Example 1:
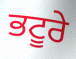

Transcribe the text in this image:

ਭਟੂਰੇ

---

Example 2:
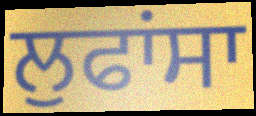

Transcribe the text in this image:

ਲੁਫਾਂਸਾ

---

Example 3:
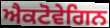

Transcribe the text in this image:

ਐਕਟੋਵੇਗਿਨ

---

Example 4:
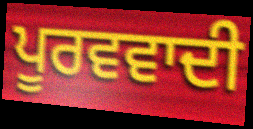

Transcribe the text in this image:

ਪੂਰਵਵਾਦੀ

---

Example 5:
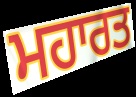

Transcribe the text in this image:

ਮਹਾਰਤ